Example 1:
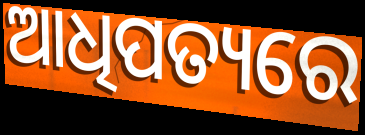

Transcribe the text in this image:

ଆଧିପତ୍ୟରେ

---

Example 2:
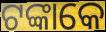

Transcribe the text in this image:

ଟଙ୍କାକେ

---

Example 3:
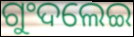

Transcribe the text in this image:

ଗୁଂଦଲେଇ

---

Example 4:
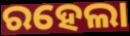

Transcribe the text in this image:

ରହେଲା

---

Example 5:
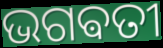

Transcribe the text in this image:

ଭଗଵତୀ